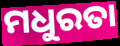
ମଧୁରତା